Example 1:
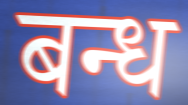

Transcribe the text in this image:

बन्ध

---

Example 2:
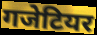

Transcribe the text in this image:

गजेटियर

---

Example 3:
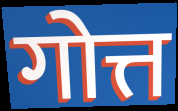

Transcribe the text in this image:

गोत्त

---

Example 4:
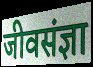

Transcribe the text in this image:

जीवसंज्ञा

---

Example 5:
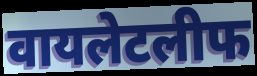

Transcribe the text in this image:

वायलेटलीफ